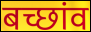
बच्छांव